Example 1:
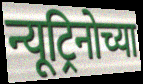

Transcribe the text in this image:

न्यूट्रिनोच्या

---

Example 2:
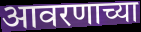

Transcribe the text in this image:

आवरणाच्या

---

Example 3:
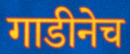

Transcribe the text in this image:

गाडीनेच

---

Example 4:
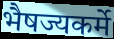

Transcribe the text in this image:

भैषज्यकर्मे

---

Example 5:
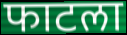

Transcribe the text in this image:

फाटला